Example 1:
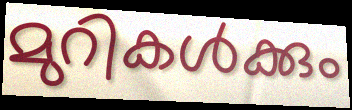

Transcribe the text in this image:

മുറികൾക്കും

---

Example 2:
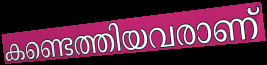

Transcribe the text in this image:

കണ്ടെത്തിയവരാണ്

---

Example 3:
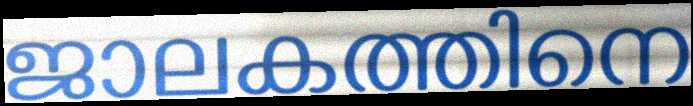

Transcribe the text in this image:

ജാലകത്തിനെ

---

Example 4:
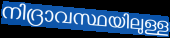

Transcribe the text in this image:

നിദ്രാവസ്ഥയിലുള്ള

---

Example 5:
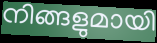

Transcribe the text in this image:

നിങ്ങളുമായി